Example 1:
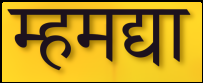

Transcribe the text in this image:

म्हमद्या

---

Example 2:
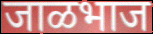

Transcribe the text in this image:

जाळभाज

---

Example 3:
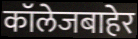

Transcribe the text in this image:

कॉलेजबाहेर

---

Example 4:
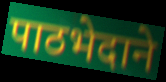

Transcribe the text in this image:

पाठभेदाने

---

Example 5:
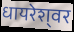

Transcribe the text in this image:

धायरेश्वर